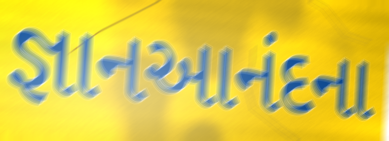
જ્ઞાનઆનંદના